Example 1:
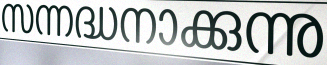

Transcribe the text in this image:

സന്നദ്ധനാക്കുന്നു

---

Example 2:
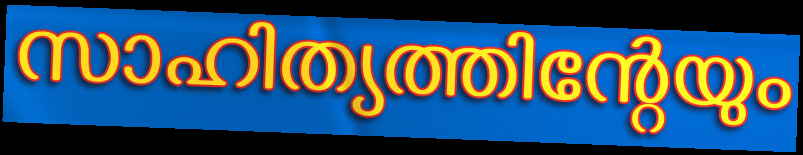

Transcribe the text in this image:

സാഹിത്യത്തിന്റേയും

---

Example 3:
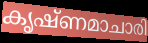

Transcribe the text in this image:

കൃഷ്ണമാചാരി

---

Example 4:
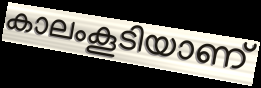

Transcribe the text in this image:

കാലംകൂടിയാണ്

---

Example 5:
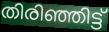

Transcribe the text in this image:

തിരിഞ്ഞിട്ട്